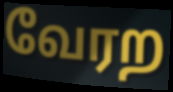
வேரற